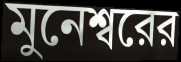
মুনেশ্বরের